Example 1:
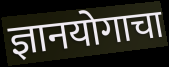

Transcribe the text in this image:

ज्ञानयोगाचा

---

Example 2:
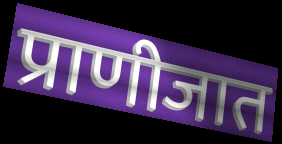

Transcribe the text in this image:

प्राणीजात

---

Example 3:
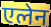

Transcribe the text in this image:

एलेन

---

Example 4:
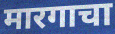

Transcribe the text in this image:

मारगाचा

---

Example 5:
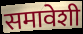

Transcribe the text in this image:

समावेशी